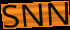
SNN